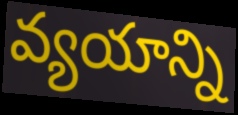
వ్యయాన్ని